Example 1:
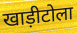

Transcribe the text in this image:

खाड़ीटोला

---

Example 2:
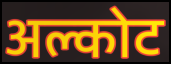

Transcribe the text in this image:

अल्कोट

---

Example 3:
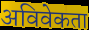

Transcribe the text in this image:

अविवेकता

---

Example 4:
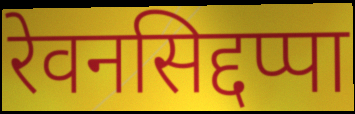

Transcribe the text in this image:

रेवनसिद्दप्पा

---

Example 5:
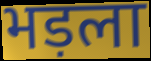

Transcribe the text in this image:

भड़ला